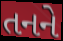
તનને